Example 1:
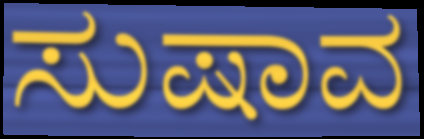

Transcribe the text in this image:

ಸುಷಾವ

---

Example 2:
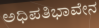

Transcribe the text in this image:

ಅಧಿಪತಿಭಾವೇನ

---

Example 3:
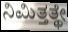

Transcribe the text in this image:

ನಿಮಿತ್ತತ್ಥೇ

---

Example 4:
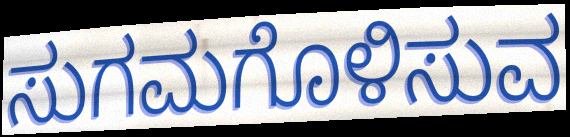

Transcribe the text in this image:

ಸುಗಮಗೊಳಿಸುವ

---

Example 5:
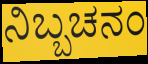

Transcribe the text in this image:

ನಿಬ್ಬಚನಂ